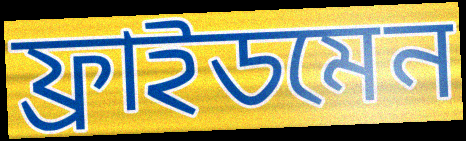
ফ্ৰাইডমেন